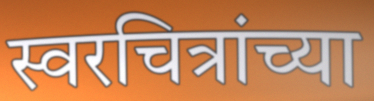
स्वरचित्रांच्या